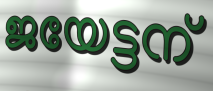
ജയേട്ടന്